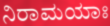
ನಿರಾಮಯಾಃ